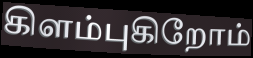
கிளம்புகிறோம்